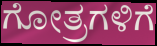
ಗೋತ್ರಗಳಿಗೆ